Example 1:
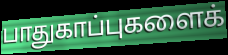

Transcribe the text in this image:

பாதுகாப்புகளைக்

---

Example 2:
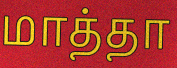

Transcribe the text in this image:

மாத்தா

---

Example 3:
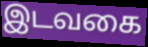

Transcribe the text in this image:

இடவகை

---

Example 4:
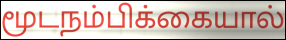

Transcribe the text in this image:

மூடநம்பிக்கையால்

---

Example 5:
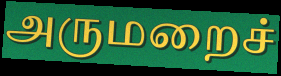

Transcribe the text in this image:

அருமறைச்